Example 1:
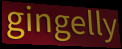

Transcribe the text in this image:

gingelly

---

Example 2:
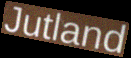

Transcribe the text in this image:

Jutland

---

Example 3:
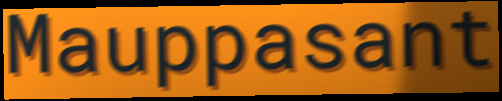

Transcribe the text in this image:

Mauppasant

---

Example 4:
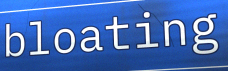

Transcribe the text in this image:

bloating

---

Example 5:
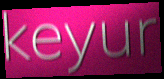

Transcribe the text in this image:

keyur